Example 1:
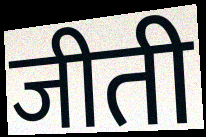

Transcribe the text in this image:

जीती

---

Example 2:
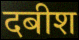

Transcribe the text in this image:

दबीश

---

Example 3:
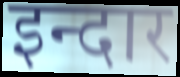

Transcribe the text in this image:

इन्दार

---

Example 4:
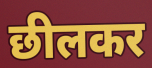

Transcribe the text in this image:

छीलकर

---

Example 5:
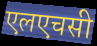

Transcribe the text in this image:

एलएचसी